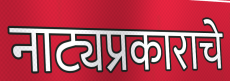
नाट्यप्रकाराचे